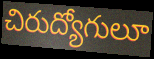
చిరుద్యోగులూ